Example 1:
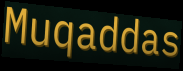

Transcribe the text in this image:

Muqaddas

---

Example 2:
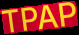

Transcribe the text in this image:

TPAP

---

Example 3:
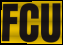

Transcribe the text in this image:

FCU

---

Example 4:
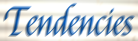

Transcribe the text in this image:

Tendencies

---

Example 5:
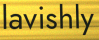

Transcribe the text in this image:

lavishly